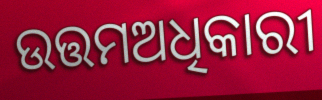
ଉତ୍ତମଅଧିକାରୀ